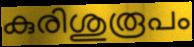
കുരിശുരൂപം